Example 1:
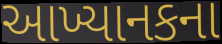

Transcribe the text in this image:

આખ્યાનકના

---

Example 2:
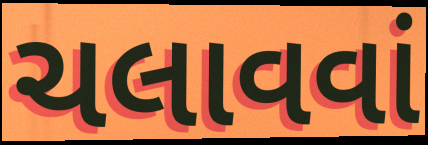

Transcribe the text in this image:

ચલાવવાં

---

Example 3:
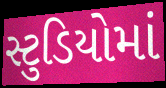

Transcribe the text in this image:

સ્ટુડિયોમાં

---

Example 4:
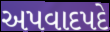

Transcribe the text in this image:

અપવાદપદે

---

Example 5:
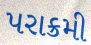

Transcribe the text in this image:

પરાક્રમી